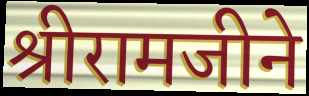
श्रीरामजीने